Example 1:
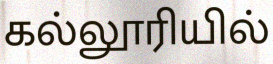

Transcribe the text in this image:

கல்லூரியில்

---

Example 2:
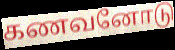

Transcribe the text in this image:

கணவனோடு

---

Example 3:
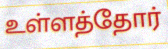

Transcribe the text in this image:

உள்ளத்தோர்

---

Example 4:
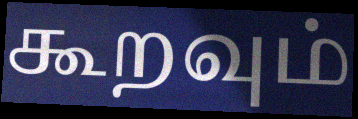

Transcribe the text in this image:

கூறவும்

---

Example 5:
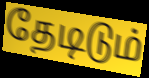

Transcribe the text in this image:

தேடிடும்